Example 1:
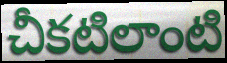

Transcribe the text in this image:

చీకటిలాంటి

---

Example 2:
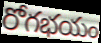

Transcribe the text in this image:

రోగభయం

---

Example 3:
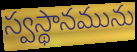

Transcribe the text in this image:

స్వస్థానమును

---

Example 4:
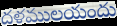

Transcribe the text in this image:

దళములయందు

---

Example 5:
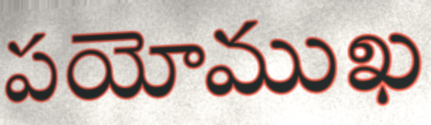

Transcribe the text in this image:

పయోముఖ